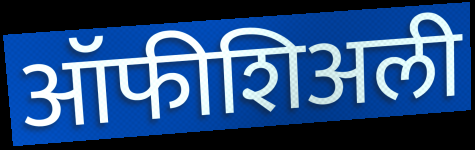
ऑफीशिअली